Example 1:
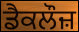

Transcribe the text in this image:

ਡੈਕਲੌਜ਼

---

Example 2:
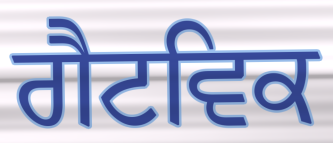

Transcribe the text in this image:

ਗੈਟਵਿਕ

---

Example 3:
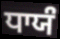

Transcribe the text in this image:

ਧਾਯੰ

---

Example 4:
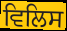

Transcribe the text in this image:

ਵਿਲਿਸ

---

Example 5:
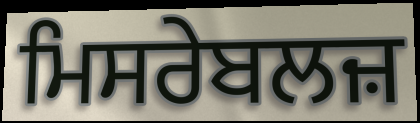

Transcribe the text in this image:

ਮਿਸਰੇਬਲਜ਼